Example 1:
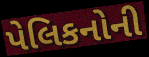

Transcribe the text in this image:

પેલિકનોની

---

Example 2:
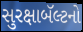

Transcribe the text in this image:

સુરક્ષાબૅલ્ટનો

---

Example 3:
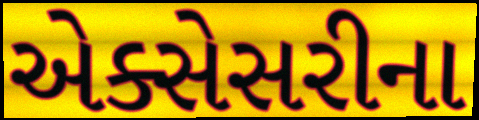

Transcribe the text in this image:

એક્સેસરીના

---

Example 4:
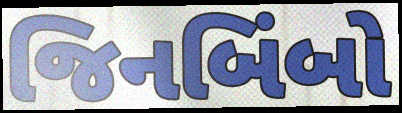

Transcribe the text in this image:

જિનબિંબો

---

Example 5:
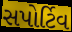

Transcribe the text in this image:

સપોર્ટિવ